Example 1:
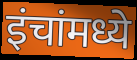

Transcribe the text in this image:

इंचांमध्ये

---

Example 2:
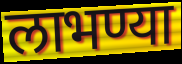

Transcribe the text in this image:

लाभण्या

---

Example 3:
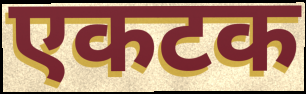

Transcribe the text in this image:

एकटक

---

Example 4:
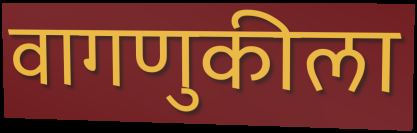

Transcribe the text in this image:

वागणुकीला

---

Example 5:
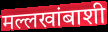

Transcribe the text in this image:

मल्लखांबाशी